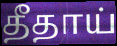
தீதாய்